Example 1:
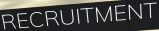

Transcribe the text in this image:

RECRUITMENT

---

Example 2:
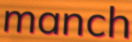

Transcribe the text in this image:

manch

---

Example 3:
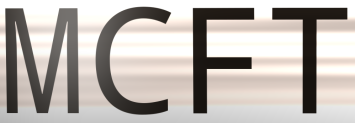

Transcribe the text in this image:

MCFT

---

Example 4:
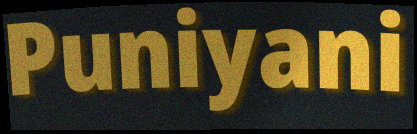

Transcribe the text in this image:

Puniyani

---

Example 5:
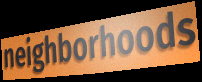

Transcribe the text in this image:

neighborhoods